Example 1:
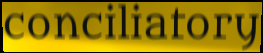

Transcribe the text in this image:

conciliatory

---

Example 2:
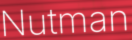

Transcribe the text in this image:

Nutman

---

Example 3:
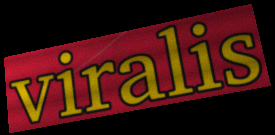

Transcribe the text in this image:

viralis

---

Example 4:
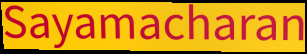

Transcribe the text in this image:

Sayamacharan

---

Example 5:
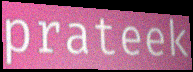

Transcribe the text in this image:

prateek